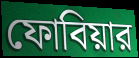
ফোবিয়ার